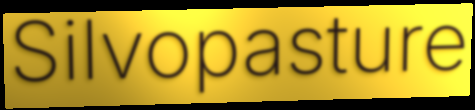
Silvopasture